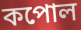
কপোল